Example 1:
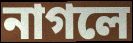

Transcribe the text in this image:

নাগলে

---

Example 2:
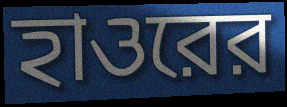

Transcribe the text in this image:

হাওরের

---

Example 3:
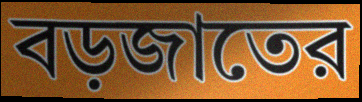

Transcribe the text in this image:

বড়জাতের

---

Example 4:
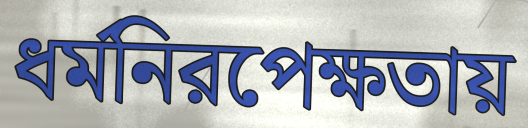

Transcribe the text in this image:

ধর্মনিরপেক্ষতায়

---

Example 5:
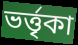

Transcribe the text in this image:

ভর্ত্তৃকা